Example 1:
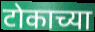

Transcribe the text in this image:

टोकाच्या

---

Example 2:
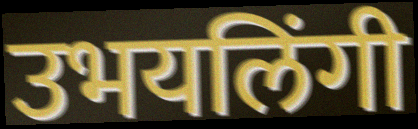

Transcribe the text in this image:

उभयलिंगी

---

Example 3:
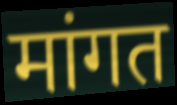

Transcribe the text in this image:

मांगत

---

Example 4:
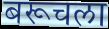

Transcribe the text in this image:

बरूचला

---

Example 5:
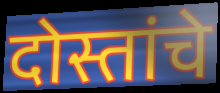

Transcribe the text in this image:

दोस्तांचे